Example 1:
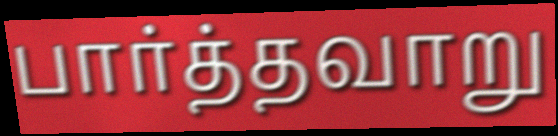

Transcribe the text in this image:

பார்த்தவாறு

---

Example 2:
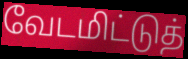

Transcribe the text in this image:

வேடமிட்டுத்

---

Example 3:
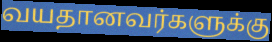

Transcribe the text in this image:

வயதானவர்களுக்கு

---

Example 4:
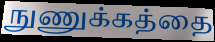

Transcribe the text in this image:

நுணுக்கத்தை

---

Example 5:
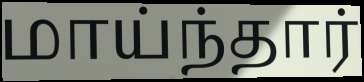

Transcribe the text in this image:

மாய்ந்தார்